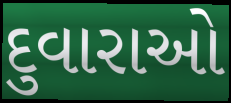
દુવારાઓ